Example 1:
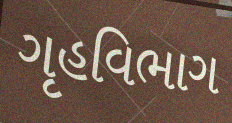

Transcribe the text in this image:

ગૃહવિભાગ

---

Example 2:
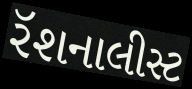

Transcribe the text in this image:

રૅશનાલીસ્ટ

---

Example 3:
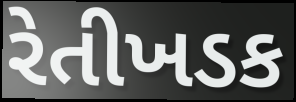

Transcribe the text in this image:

રેતીખડક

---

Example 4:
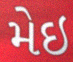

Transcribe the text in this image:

મેઇ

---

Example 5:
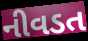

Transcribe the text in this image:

નીવડત